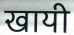
खायी